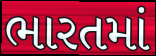
ભારતમાં